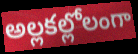
అల్లకల్లోలంగా